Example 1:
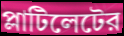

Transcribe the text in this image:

প্লাটিলেটের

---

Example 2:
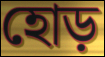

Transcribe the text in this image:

হোড়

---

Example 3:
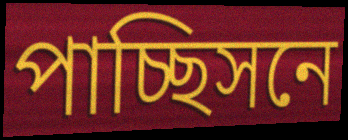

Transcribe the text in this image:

পাচ্ছিসনে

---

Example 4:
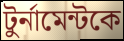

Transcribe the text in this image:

টুর্নামেন্টকে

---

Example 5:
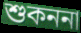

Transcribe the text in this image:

শুকননা